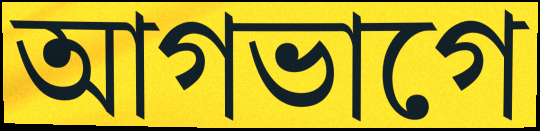
আগভাগে